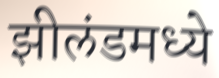
झीलंडमध्ये